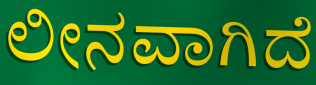
ಲೀನವಾಗಿದೆ